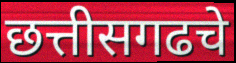
छत्तीसगढचे